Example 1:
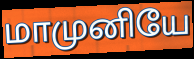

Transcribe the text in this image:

மாமுனியே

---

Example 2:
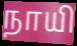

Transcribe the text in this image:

நாயி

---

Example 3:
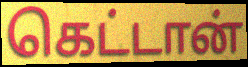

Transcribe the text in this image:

கெட்டான்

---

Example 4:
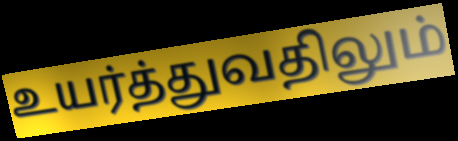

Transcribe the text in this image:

உயர்த்துவதிலும்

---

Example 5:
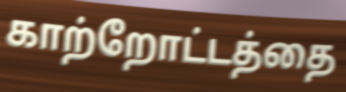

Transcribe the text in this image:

காற்றோட்டத்தை